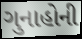
ગુનાહોની